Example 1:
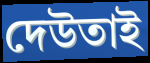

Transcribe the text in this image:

দেউতাই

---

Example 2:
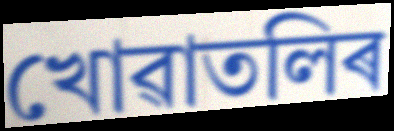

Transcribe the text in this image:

খোৱাতলিৰ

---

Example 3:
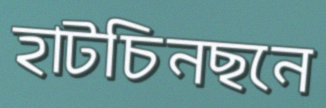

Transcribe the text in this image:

হাটচিনছনে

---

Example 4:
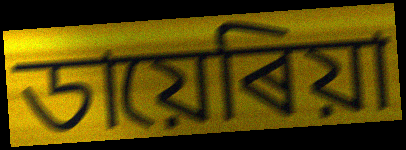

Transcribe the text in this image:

ডায়েৰিয়া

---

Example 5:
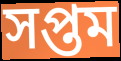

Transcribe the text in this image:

সপ্তম